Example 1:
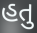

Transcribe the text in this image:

હતુ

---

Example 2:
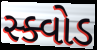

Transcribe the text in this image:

સ્ક્વોડ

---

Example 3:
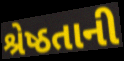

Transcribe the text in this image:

શ્રેષ્ઠતાની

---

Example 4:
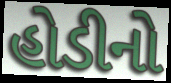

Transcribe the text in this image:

હોડીનો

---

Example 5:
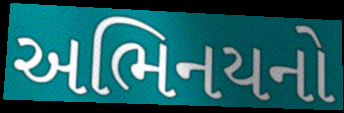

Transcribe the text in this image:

અભિનયનો